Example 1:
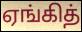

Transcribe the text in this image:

ஏங்கித்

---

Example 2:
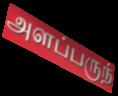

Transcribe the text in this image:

அளப்பருந்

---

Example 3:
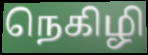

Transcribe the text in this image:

நெகிழி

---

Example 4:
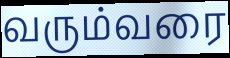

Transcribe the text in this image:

வரும்வரை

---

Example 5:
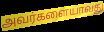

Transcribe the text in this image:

அவர்களையாவது